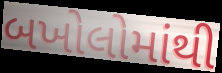
બખોલોમાંથી